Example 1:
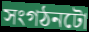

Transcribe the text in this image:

সংগঠনটো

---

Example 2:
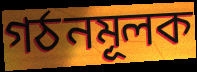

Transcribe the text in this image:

গঠনমূলক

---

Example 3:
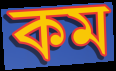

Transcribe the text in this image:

কম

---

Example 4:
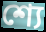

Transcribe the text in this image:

শ্যে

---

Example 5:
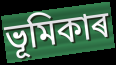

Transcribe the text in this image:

ভূমিকাৰ